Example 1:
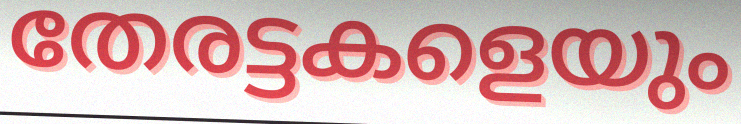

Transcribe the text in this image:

തേരട്ടകളെയും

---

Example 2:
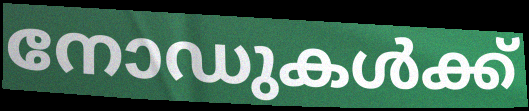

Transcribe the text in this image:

നോഡുകൾക്ക്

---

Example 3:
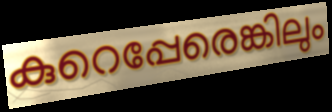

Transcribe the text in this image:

കുറെപ്പേരെങ്കിലും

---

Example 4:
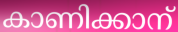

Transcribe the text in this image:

കാണിക്കാന്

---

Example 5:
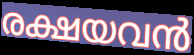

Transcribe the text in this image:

രക്ഷയവൻ